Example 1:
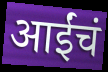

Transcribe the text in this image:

आईंचं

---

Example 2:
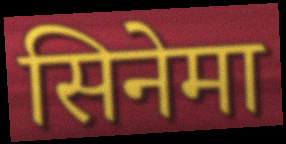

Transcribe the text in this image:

सिनेमा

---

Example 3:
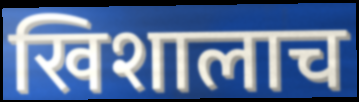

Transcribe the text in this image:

खिशालाच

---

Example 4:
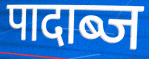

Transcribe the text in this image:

पादाब्ज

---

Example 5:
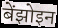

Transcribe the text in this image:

बेंझोइन